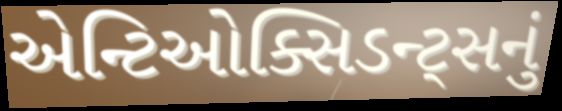
એન્ટિઓક્સિડન્ટ્સનું